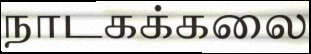
நாடகக்கலை